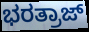
ಭರತ್ರಾಜ್